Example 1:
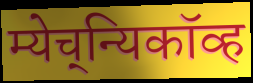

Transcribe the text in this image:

म्येच्‌न्यिकॉव्ह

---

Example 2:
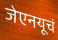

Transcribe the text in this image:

जेएनयूचं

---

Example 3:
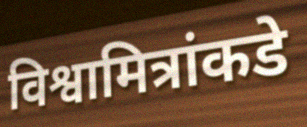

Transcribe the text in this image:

विश्वामित्रांकडे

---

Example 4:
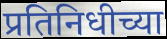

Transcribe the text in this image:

प्रतिनिधीच्या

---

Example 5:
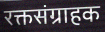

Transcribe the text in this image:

रक्तसंग्राहक